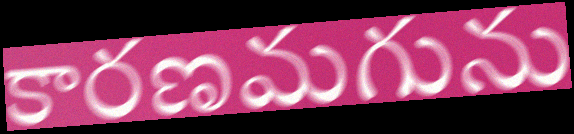
కారణమగును